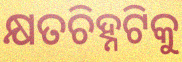
କ୍ଷତଚିହ୍ନଟିକୁ